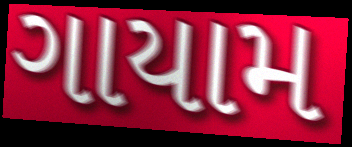
ગાયામ